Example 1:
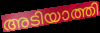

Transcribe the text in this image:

അടിയാത്തി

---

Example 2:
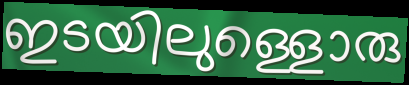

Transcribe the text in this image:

ഇടയിലുള്ളൊരു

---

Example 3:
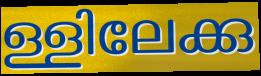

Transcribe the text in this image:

ള്ളിലേക്കു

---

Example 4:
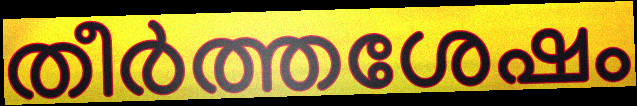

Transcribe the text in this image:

തീർത്തശേഷം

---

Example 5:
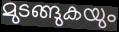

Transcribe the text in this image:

മുടങ്ങുകയും